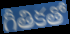
గీతికతో